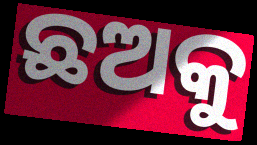
ଛଅକୁ